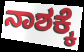
ನಾಶಕ್ಕೆ